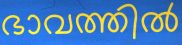
ഭാവത്തിൽ